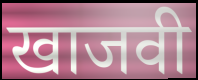
खाजवी